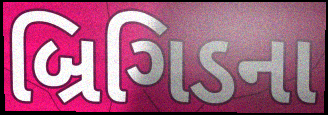
બ્રિગિડના